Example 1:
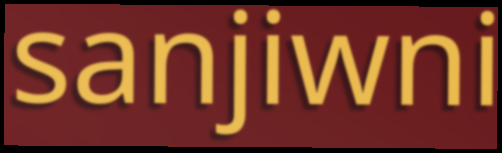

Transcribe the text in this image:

sanjiwni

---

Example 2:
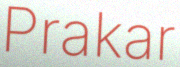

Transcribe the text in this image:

Prakar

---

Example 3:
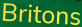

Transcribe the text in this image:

Britons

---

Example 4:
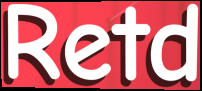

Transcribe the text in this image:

Retd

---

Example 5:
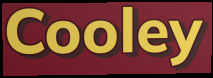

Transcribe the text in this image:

Cooley